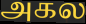
அகல